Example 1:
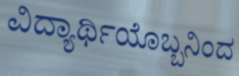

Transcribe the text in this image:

ವಿದ್ಯಾರ್ಥಿಯೊಬ್ಬನಿಂದ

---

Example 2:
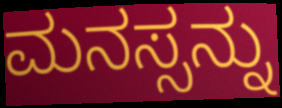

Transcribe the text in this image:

ಮನಸ್ಸನ್ನು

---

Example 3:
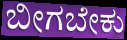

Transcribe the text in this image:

ಬೀಗಬೇಕು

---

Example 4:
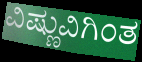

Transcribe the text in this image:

ವಿಷ್ಣುವಿಗಿಂತ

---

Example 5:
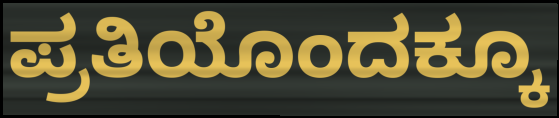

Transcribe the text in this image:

ಪ್ರತಿಯೊಂದಕ್ಕೂ